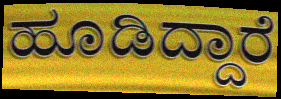
ಹೂಡಿದ್ದಾರೆ